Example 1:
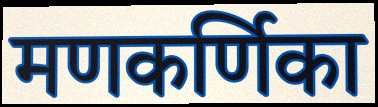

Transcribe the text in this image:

मणकर्णिका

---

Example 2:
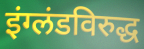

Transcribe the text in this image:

इंग्लंडविरुद्ध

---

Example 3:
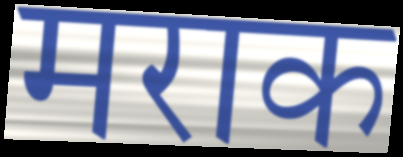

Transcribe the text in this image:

मराक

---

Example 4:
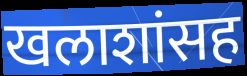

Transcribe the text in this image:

खलाशांसह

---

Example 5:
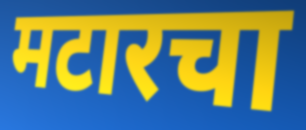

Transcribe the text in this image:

मटारचा